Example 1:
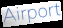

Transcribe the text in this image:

Airport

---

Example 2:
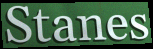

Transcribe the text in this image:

Stanes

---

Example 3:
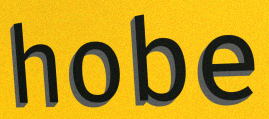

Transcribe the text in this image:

hobe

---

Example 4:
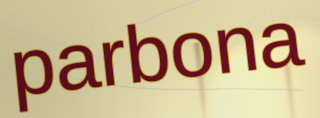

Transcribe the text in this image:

parbona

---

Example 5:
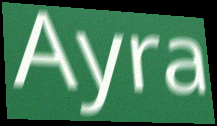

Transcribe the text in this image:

Ayra